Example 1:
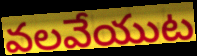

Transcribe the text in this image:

వలవేయుట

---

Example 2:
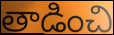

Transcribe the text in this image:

తాడించి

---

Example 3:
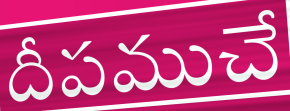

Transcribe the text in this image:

దీపముచే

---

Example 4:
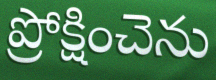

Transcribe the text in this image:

ప్రోక్షించెను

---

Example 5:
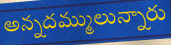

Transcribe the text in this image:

అన్నదమ్ములున్నారు